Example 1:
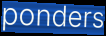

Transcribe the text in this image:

ponders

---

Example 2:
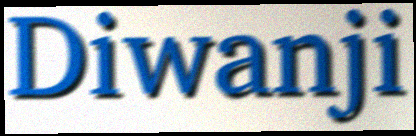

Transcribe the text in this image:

Diwanji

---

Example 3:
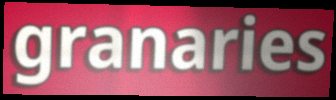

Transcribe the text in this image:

granaries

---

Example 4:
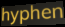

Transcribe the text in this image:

hyphen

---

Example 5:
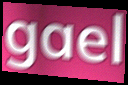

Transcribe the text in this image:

gael